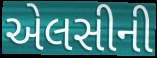
એલસીની